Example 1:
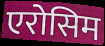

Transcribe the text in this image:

एरोसिम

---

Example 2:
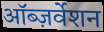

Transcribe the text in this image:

ऑब्ज़र्वेशन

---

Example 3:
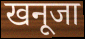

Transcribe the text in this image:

खनूजा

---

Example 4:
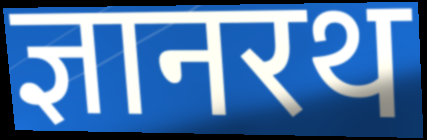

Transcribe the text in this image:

ज्ञानरथ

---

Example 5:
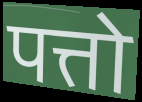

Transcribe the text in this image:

पत्तो